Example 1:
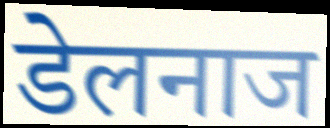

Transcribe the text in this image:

डेलनाज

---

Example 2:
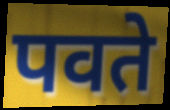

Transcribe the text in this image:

पवते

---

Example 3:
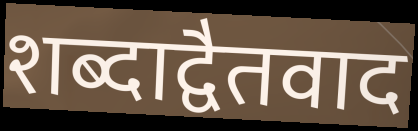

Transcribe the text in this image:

शब्दाद्वैतवाद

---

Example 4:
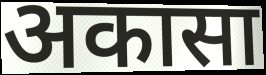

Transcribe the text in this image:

अकासा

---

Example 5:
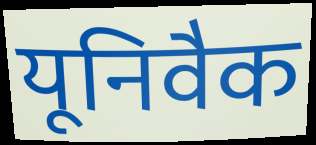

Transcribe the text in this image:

यूनिवैक